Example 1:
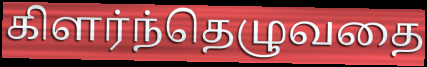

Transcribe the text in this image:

கிளர்ந்தெழுவதை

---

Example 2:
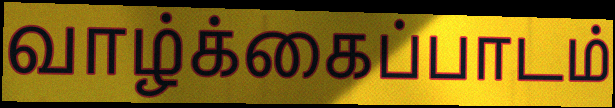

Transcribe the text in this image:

வாழ்க்கைப்பாடம்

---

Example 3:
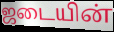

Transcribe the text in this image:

ஜடையின்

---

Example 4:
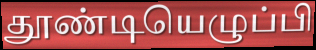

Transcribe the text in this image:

தூண்டியெழுப்பி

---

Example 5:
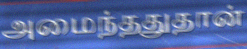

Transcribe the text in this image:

அமைந்ததுதான்